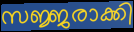
സജ്ജരാക്കി